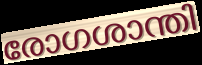
രോഗശാന്തി